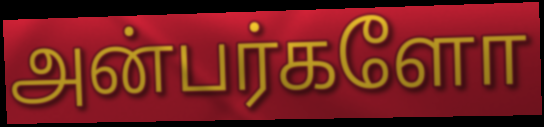
அன்பர்களோ